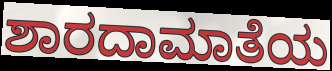
ಶಾರದಾಮಾತೆಯ